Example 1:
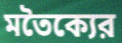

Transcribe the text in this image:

মতৈক্যের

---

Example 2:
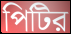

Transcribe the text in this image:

পিটির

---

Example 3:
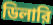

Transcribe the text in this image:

ডিলারি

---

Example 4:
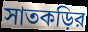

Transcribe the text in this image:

সাতকড়ির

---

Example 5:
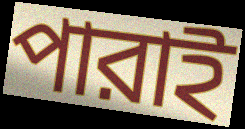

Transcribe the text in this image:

পারাই